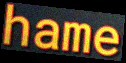
hame